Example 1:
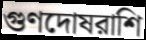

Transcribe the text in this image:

গুণদোষরাশি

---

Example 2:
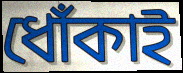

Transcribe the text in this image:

ধোঁকাই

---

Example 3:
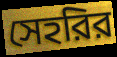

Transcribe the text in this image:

সেহরির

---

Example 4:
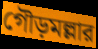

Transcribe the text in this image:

গৌড়মল্লার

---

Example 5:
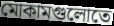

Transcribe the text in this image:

মোকামগুলোতে